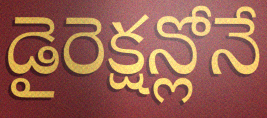
డైరెక్షన్లోనే